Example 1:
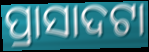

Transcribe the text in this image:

ପ୍ରାସାଦଟା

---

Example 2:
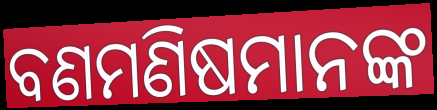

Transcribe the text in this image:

ବଣମଣିଷମାନଙ୍କ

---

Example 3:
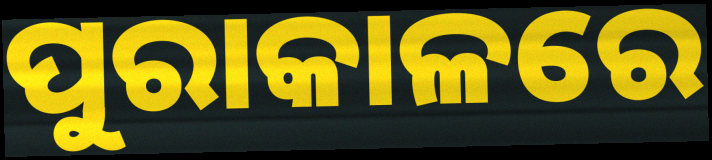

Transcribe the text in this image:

ପୁରାକାଳରେ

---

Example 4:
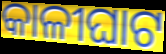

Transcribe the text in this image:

କାଳୀଘାଟ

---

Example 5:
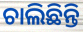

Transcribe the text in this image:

ଚାଲିଛିନ୍ତି